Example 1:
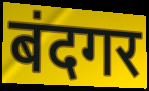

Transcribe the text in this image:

बंदगर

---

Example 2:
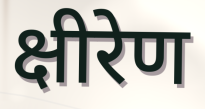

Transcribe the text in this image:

क्षीरेण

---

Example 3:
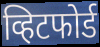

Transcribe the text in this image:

व्हिटफोर्ड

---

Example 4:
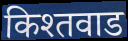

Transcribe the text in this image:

किश्तवाड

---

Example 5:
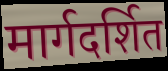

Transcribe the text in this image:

मार्गदर्शित